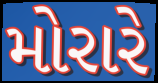
મોરારે